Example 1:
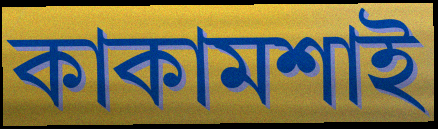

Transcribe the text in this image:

কাকামশাই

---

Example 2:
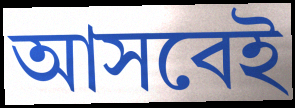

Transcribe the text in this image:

আসবেই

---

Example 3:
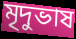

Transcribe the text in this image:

মৃদুভাষ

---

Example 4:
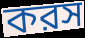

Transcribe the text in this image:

করস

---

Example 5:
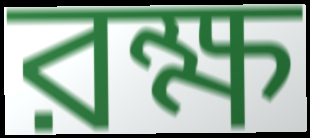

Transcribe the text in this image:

রক্ষ